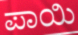
ಪಾಯಿ